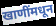
खाणींमधून